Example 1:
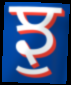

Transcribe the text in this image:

ਝੁ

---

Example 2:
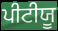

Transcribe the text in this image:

ਪੀਟੀਯੂ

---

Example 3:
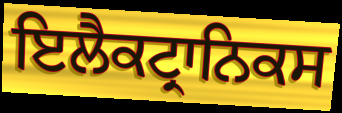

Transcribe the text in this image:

ਇਲੈਕਟ੍ਰਾਨਿਕਸ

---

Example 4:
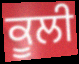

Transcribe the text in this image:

ਕੂਲੀ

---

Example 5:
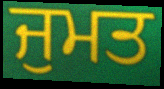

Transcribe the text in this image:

ਜੁਮਤ